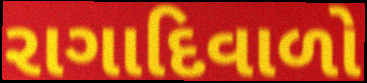
રાગાદિવાળો